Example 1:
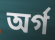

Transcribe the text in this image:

অৰ্গ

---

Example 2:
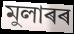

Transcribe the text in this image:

মুলাৰৰ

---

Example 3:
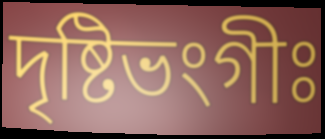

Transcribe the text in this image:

দৃষ্টিভংগীঃ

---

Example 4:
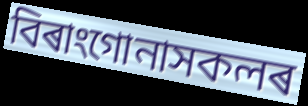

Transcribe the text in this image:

বিৰাংগোনাসকলৰ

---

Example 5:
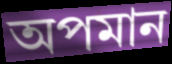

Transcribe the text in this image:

অপমান